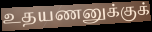
உதயணனுக்குக்